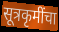
सूत्रकृमींचा